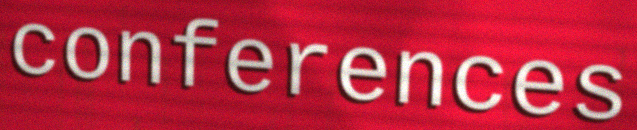
conferences